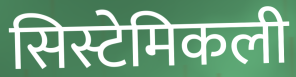
सिस्टेमिकली